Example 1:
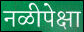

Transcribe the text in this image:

नळीपेक्षा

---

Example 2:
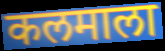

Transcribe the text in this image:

कलमाला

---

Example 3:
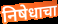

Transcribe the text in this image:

निषेधाचा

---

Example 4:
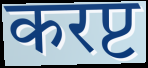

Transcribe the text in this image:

करप्ट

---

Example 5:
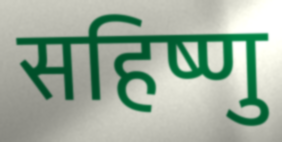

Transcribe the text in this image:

सहिष्णु